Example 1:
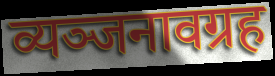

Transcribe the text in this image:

व्यञ्जनावग्रह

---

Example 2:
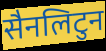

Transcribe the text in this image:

सैनलिटुन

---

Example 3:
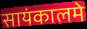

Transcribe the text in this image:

सायंकालमे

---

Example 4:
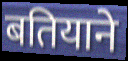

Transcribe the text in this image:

बतियाने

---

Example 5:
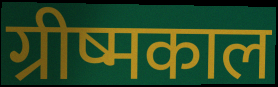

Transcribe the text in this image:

ग्रीष्मकाल